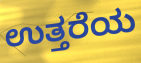
ಉತ್ತರೆಯ